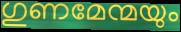
ഗുണമേന്മയും